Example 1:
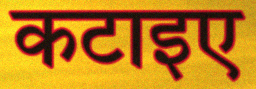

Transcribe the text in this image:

कटाइए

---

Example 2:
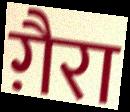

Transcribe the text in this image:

ग़ैरा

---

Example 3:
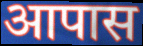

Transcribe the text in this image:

आपास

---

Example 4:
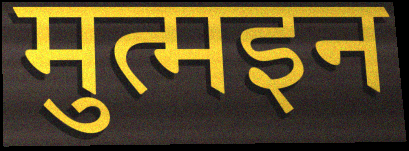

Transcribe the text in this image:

मुत्मइन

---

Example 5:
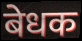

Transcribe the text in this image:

बेधक